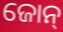
ଜୋନ୍